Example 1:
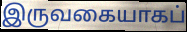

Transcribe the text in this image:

இருவகையாகப்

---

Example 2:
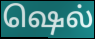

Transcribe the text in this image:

ஷெல்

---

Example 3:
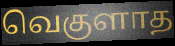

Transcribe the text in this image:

வெகுளாத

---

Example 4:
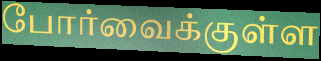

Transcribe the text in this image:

போர்வைக்குள்ள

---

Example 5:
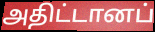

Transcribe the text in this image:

அதிட்டானப்